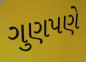
ગુણપણે